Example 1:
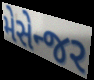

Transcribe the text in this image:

મેસેન્જર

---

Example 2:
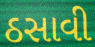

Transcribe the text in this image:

ઠસાવી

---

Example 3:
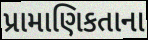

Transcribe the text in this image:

પ્રામાણિકતાના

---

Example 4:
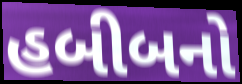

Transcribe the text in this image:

હબીબનો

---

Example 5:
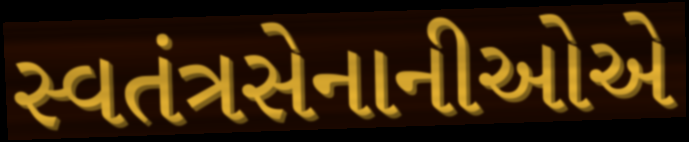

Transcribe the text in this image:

સ્વતંત્રસેનાનીઓએ